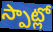
స్పాట్లో